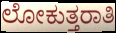
ಲೋಕುತ್ತರಾತಿ